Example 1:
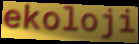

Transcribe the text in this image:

ekoloji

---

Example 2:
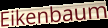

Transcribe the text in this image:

Eikenbaum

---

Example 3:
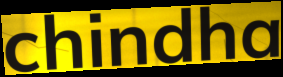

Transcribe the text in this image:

chindha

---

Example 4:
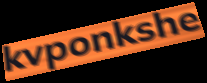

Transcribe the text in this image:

kvponkshe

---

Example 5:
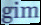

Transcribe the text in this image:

gim